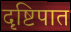
दृष्टिपात